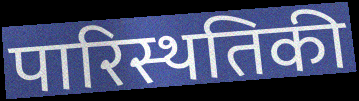
पारिस्थतिकी